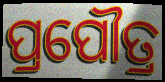
ପ୍ରପୌତ୍ର